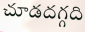
చూడదగ్గది